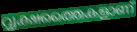
വൃക്ഷത്തൈകളാണ്